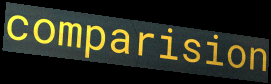
comparision